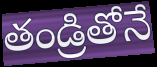
తండ్రితోనే